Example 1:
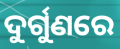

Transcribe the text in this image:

ଦୁର୍ଗୁଣରେ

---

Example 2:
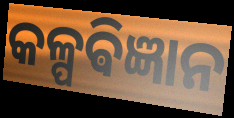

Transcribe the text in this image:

କଳ୍ପଵିଜ୍ଞାନ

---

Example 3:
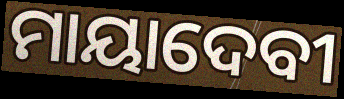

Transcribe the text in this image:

ମାୟାଦେବୀ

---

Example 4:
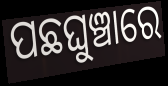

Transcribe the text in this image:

ପଛଘୁଞ୍ଚାରେ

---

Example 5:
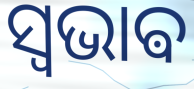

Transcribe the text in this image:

ସ୍ଵଭାଵ